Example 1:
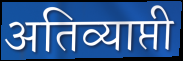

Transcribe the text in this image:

अतिव्याप्ती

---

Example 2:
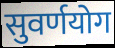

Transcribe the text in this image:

सुवर्णयोग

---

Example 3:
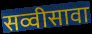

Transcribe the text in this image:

सव्वीसावा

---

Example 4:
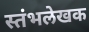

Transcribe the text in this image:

स्तंभलेखक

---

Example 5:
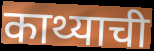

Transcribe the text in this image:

काथ्याची